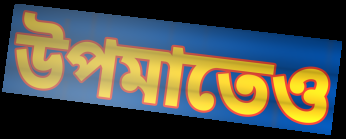
উপমাতেও